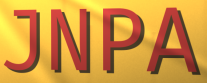
JNPA